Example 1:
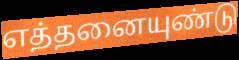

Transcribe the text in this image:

எத்தனையுண்டு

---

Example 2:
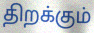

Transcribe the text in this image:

திறக்கும்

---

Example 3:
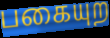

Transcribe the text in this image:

பகையுற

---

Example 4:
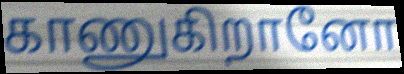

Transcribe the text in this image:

காணுகிறானோ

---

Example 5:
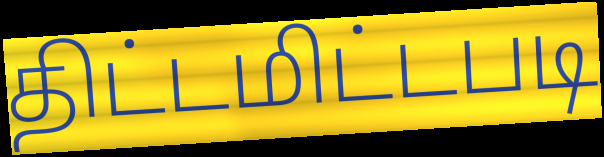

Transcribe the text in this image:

திட்டமிட்டபடி